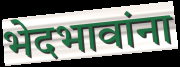
भेदभावांना